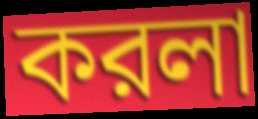
করলা